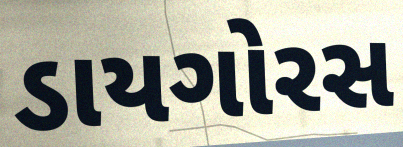
ડાયગોરસ